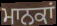
ਮਾਨਕਾਂ